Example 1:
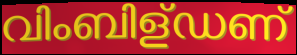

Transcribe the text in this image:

വിംബിള്ഡണ്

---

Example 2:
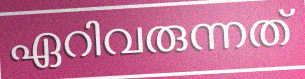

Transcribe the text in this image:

ഏറിവരുന്നത്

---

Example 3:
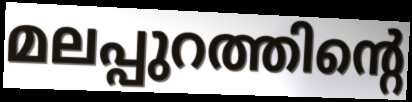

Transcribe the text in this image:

മലപ്പുറത്തിന്റെ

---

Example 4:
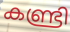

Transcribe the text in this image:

കണ്ട്രി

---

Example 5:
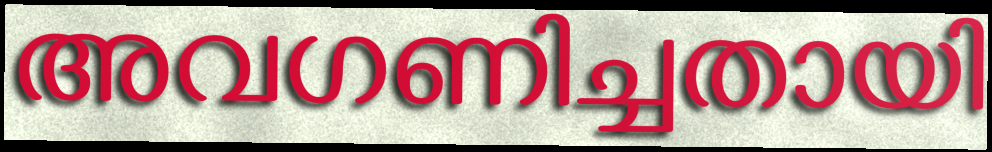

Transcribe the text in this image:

അവഗണിച്ചതായി